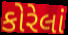
કોરેલાં